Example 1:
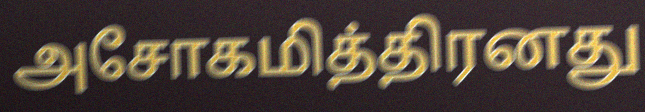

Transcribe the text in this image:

அசோகமித்திரனது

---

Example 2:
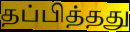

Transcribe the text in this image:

தப்பித்தது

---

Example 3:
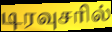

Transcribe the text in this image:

டிரவுசரில்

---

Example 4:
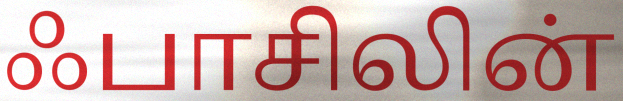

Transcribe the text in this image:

ஃபாசிலின்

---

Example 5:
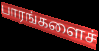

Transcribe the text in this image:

பாரங்களைச்